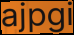
ajpgi